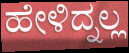
ಹೇಳಿದ್ನಲ್ಲ